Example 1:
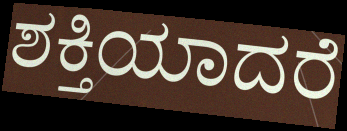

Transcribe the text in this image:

ಶಕ್ತಿಯಾದರೆ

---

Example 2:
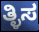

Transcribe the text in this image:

ತ್ಳಿಸ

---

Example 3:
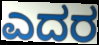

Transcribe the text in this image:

ಎದರ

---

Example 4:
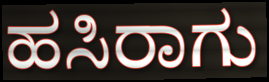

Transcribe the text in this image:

ಹಸಿರಾಗು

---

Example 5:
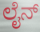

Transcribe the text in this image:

ಲೈನ್